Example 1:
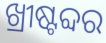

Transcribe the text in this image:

ଖ୍ରୀଷ୍ଟବ୍ଦର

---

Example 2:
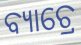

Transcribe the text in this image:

ବ୍ୟାଚ୍ରେ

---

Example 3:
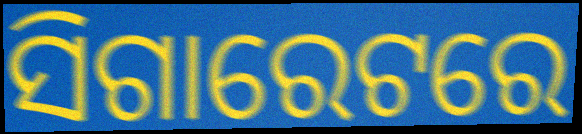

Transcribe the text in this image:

ସିଗାରେଟରେ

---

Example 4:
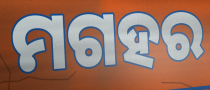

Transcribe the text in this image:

ମଗହର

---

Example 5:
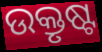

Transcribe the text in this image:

ଉକ୍ତୃଷ୍ଟ